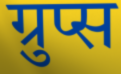
ग्रुप्स